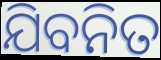
ଯିବନିତ